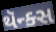
થૅન્ક્સ